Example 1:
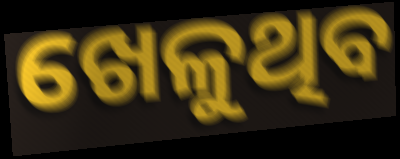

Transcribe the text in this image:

ଖେଳୁଥିବ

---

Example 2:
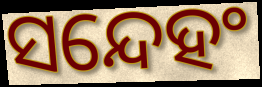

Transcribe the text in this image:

ସନ୍ଦେହଂ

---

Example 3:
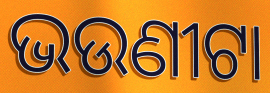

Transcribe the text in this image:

ଭଉଣୀଟା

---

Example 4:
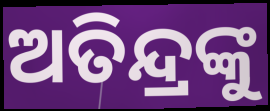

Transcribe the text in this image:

ଅତିନ୍ଦ୍ରଙ୍କୁ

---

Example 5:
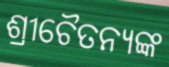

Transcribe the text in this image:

ଶ୍ରୀଚୈତନ୍ୟଙ୍କ